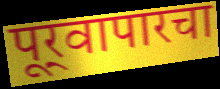
पूर्वापारचा